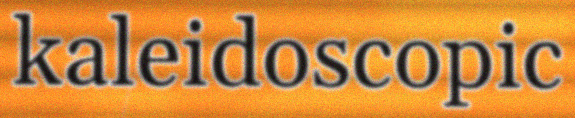
kaleidoscopic